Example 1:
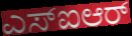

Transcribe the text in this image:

ಎಸ್ಐಆರ್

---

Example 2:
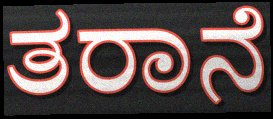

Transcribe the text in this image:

ತರಾನೆ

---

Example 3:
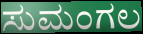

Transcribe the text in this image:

ಸುಮಂಗಲ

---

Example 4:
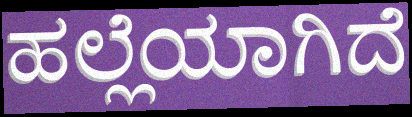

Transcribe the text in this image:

ಹಲ್ಲೆಯಾಗಿದೆ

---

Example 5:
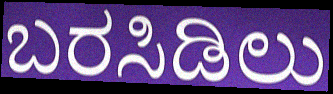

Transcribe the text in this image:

ಬರಸಿಡಿಲು